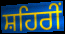
ਸ਼ਹਿਰੀਂ